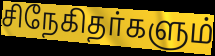
சிநேகிதர்களும்